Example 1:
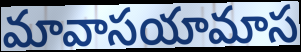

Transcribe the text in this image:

మావాసయామాస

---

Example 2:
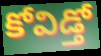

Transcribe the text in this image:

కోవిడ్తో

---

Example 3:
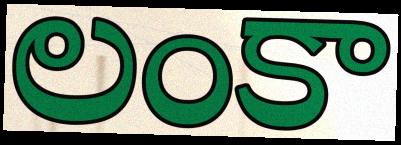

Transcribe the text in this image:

లంకా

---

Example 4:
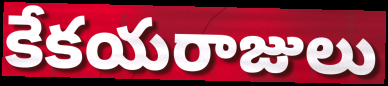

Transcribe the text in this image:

కేకయరాజులు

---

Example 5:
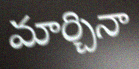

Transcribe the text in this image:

మార్చినా